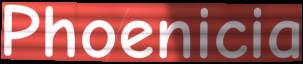
Phoenicia